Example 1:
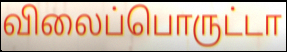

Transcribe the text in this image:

விலைப்பொருட்டா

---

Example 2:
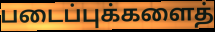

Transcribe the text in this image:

படைப்புக்களைத்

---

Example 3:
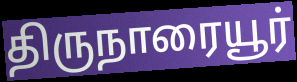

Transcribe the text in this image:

திருநாரையூர்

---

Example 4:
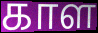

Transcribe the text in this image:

காள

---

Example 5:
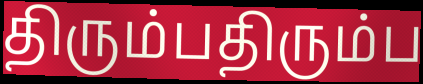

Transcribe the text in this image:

திரும்பதிரும்ப